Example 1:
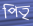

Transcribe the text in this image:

পিতৃ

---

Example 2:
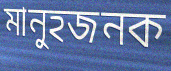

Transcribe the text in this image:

মানুহজনক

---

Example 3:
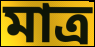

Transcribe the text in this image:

মাত্ৰ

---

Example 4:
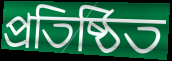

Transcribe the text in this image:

প্ৰতিষ্ঠিত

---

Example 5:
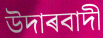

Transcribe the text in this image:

উদাৰবাদী